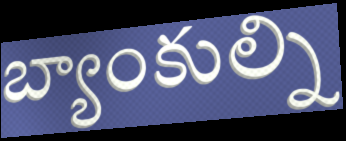
బ్యాంకుల్ని